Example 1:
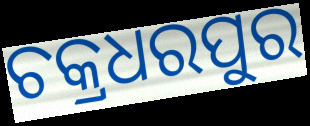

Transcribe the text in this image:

ଚକ୍ରଧରପୁର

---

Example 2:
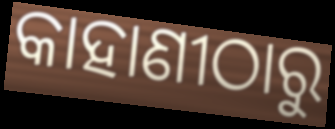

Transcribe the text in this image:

କାହାଣୀଠାରୁ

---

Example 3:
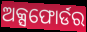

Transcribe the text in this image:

ଅକ୍ସଫୋର୍ଡର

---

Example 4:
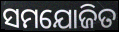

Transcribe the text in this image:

ସମଯୋଜିତ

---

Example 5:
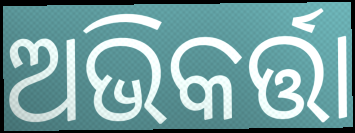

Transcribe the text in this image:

ଅଭିକର୍ତ୍ତା